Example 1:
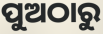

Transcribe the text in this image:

ପୁଅଠାରୁ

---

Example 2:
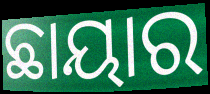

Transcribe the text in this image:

ଛାୟାର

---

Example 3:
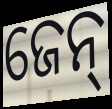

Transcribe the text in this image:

ଜେନ୍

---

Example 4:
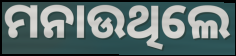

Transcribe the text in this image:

ମନାଉଥିଲେ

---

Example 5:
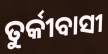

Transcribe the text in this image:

ତୁର୍କୀବାସୀ